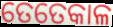
ତେତେକାଳ